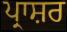
ਪ੍ਰਾਸ਼ਰ